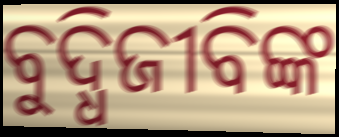
ବୁଦ୍ଧିଜୀବିଙ୍କ